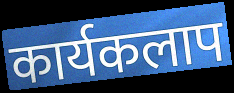
कार्यकलाप